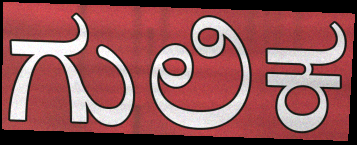
ಗುಲಿಕ